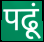
पढूं